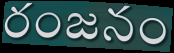
రంజనం